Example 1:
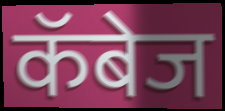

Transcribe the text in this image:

कॅबेज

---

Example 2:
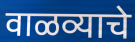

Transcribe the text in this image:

वाळव्याचे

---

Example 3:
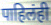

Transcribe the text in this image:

पाहिलंही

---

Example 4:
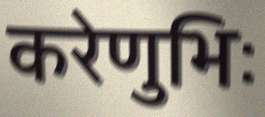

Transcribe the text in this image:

करेणुभिः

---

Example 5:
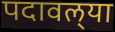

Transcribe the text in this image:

पदावल्या